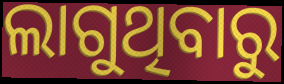
ଲାଗୁଥିବାରୁ